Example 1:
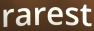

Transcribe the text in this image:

rarest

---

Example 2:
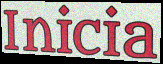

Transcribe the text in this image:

Inicia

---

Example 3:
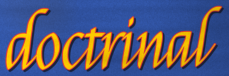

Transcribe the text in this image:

doctrinal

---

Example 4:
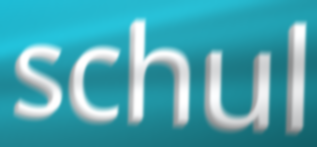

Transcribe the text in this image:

schul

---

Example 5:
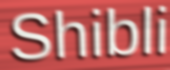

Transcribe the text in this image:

Shibli